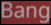
Bang